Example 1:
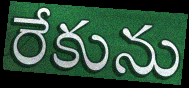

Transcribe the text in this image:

రేకును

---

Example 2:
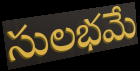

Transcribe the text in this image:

సులభమే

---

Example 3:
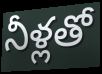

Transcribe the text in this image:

నీళ్లతో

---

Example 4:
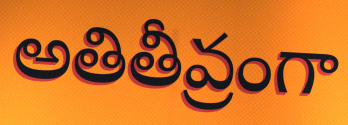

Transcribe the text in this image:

అతితీవ్రంగా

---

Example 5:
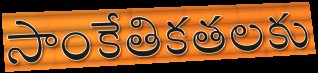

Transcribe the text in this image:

సాంకేతికతలకు